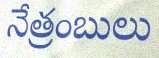
నేత్రంబులు